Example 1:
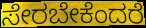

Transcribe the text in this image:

ಸೇರಬೇಕೆಂದರೆ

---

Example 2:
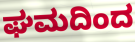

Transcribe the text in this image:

ಘಮದಿಂದ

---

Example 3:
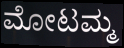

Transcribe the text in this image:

ಮೋಟಮ್ಮ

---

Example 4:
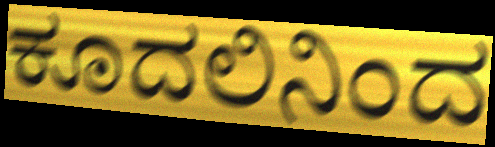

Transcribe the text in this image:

ಕೂದಲಿನಿಂದ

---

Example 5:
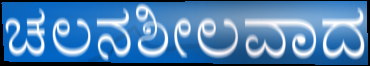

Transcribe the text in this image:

ಚಲನಶೀಲವಾದ